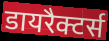
डायरैक्टर्स